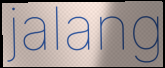
jalang